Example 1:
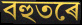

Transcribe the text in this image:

বহুতৰে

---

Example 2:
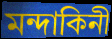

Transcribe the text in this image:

মন্দাকিনী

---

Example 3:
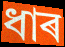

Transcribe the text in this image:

ধাৰ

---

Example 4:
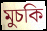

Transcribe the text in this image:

মুচকি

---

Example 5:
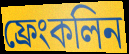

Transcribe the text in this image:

ফ্ৰেংকলিন